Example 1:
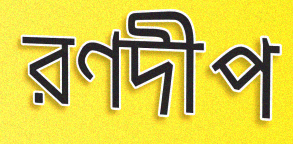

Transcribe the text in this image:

রণদীপ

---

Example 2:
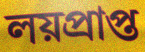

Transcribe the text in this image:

লয়প্রাপ্ত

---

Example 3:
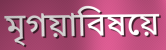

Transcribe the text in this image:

মৃগয়াবিষয়ে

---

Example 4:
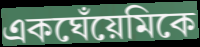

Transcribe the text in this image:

একঘেঁয়েমিকে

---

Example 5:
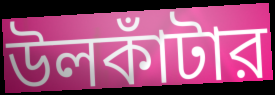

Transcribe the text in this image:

উলকাঁটার